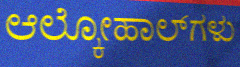
ಆಲ್ಕೋಹಾಲ್‌ಗಳು